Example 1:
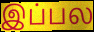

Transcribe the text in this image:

இப்பல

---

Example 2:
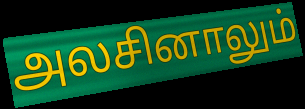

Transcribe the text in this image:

அலசினாலும்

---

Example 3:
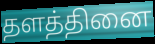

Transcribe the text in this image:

தளத்தினை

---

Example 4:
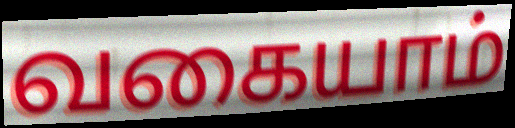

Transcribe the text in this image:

வகையாம்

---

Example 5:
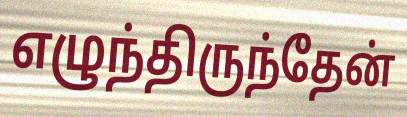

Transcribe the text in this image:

எழுந்திருந்தேன்